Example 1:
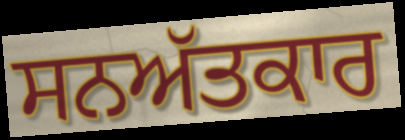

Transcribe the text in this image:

ਸਨਅੱਤਕਾਰ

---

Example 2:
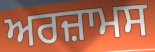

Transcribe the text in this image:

ਅਰਜ਼ਾਮਸ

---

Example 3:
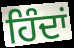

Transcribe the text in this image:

ਹਿੰਦਾਂ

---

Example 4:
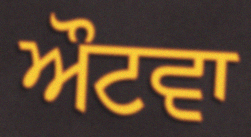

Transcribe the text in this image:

ਔਟਵਾ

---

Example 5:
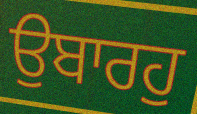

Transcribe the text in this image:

ਉਬਾਰਹੁ